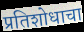
प्रतिशोधाचा